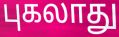
புகலாது